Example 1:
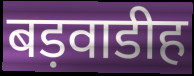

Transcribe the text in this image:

बड़वाडीह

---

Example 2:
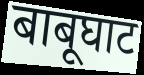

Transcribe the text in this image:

बाबूघाट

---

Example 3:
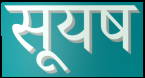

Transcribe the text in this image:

सूयष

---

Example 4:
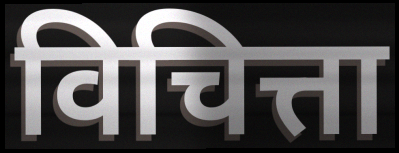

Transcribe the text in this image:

विचित्ता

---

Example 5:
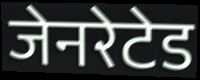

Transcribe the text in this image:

जेनरेटेड